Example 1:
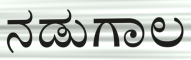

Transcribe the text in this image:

ನಡುಗಾಲ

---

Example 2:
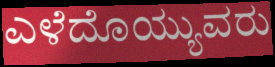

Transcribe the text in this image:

ಎಳೆದೊಯ್ಯುವರು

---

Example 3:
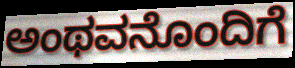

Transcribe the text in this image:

ಅಂಥವನೊಂದಿಗೆ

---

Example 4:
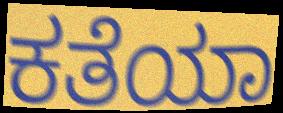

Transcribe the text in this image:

ಕತೆಯಾ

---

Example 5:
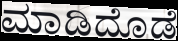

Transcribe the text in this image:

ಮಾಡಿದೊಡೆ